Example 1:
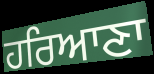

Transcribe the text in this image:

ਹਰਿਆਣਾ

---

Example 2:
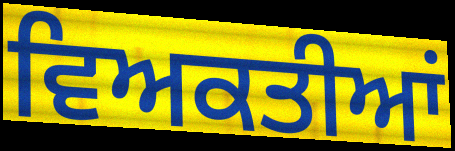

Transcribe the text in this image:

ਵਿਅਕਤੀਆਂ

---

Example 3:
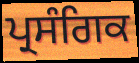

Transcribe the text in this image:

ਪ੍ਰਸੰਗਿਕ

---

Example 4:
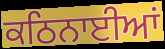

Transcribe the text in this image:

ਕਠਿਨਾਈਆਂ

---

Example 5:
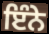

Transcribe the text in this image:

ਇੰਨੇ